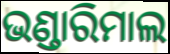
ଭଣ୍ଡାରିମାଲ